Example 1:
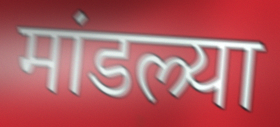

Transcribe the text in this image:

मांडल्या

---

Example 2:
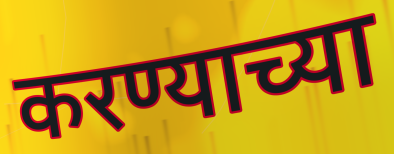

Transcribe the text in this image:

करण्याच्या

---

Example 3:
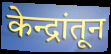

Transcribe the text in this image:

केन्द्रांतून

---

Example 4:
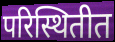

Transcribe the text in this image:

परिस्थितीत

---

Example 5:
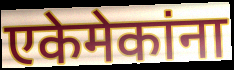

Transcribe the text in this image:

एकेमेकांना